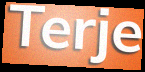
Terje